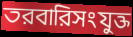
তরবারিসংযুক্ত